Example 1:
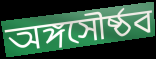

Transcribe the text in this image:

অঙ্গসৌষ্ঠব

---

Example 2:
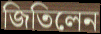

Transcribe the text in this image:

জিতিলেন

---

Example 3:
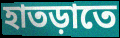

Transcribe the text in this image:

হাতড়াতে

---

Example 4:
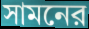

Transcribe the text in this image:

সামনের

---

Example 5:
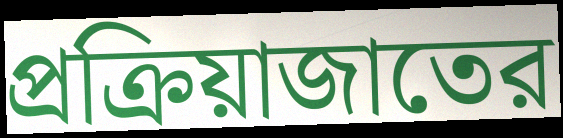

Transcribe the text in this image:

প্রক্রিয়াজাতের